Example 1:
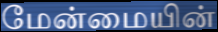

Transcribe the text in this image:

மேன்மையின்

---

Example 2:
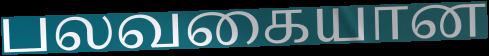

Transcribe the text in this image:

பலவகையான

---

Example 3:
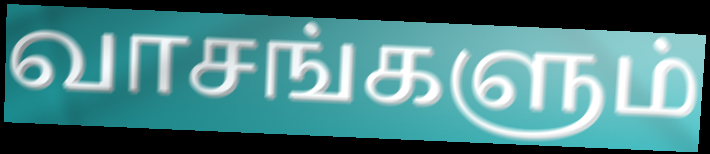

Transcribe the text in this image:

வாசங்களும்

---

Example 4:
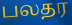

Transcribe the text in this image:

பலதர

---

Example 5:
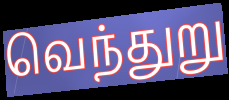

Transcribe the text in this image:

வெந்துறு